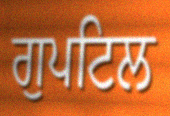
ਗੁਪਟਿਲ